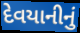
દેવયાનીનું